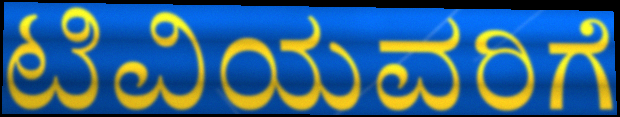
ಟಿವಿಯವರಿಗೆ